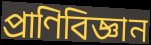
প্রাণিবিজ্ঞান